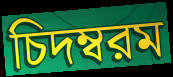
চিদম্বরম